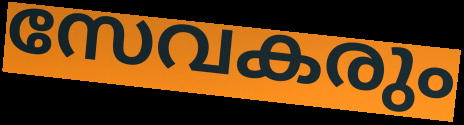
സേവകരും